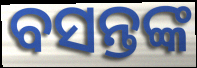
ବସନ୍ତଙ୍କ